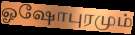
ஓஷோபுரமும்